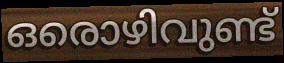
ഒരൊഴിവുണ്ട്